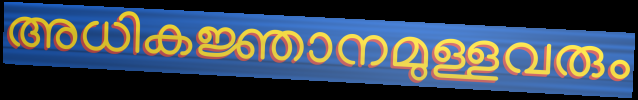
അധികജ്ഞാനമുള്ളവരും